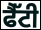
ਫੈੱਟੀ